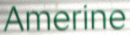
Amerine